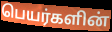
பெயர்களின்